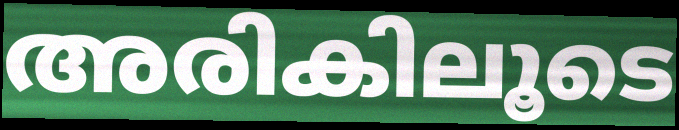
അരികിലൂടെ